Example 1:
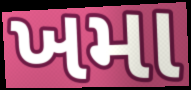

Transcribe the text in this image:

ખમા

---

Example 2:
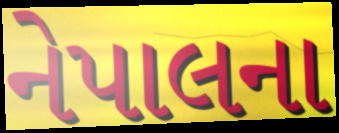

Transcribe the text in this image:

નેપાલના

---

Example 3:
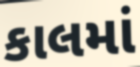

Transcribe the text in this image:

કાલમાં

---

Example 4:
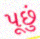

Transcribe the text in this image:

પૂછું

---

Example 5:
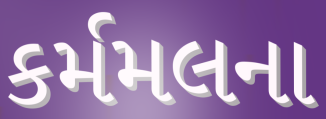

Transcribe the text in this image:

કર્મમલના